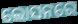
ଲୋସନରେ